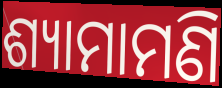
ଶ୍ୟାମାମଣି